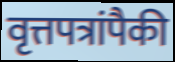
वृत्तपत्रांपैकी